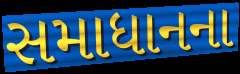
સમાધાનના